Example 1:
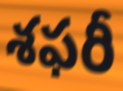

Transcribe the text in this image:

శఫరీ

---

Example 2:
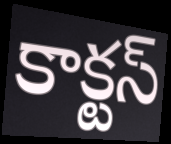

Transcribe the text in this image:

కాక్టస్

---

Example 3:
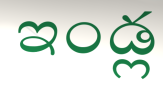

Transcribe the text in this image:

ఇండ్ల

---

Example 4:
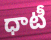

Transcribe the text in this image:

ధాటీ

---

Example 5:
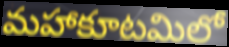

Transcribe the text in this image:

మహాకూటమిలో